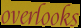
overlooks